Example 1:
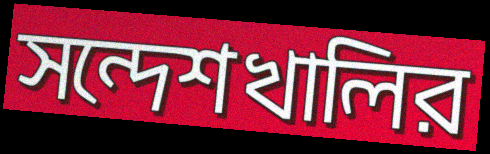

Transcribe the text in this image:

সন্দেশখালির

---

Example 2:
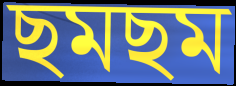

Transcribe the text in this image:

ছমছম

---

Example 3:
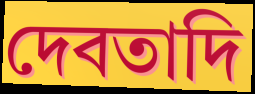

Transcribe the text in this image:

দেবতাদি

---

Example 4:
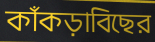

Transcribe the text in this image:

কাঁকড়াবিছের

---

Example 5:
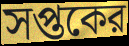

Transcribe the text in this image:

সপ্তকের